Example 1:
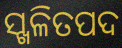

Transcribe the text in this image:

ସ୍ଖଳିତପଦ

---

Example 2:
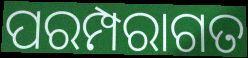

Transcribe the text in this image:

ପରମ୍ପରାଗତ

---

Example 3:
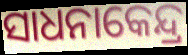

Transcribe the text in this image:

ସାଧନାକେନ୍ଦ୍ର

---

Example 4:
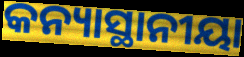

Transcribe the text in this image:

କନ୍ୟାସ୍ଥାନୀୟା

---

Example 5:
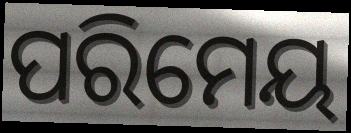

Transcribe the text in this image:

ପରିମେୟ